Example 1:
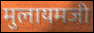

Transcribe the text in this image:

मुलायमजी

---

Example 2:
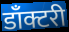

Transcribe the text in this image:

डाँक्टरी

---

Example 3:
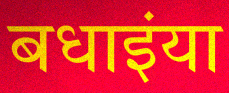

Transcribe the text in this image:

बधाइंया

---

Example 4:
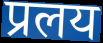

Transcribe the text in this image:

प्रलय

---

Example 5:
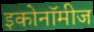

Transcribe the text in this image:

इकोनॉमीज